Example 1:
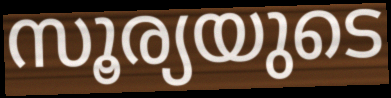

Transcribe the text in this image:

സൂര്യയുടെ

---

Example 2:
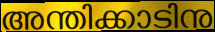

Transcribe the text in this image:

അന്തിക്കാടിനു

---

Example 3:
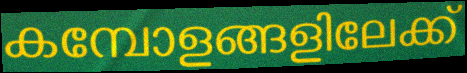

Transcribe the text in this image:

കമ്പോളങ്ങളിലേക്ക്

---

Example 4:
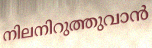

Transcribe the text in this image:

നിലനിറുത്തുവാൻ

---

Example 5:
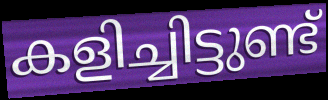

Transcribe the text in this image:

കളിച്ചിട്ടുണ്ട്